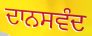
ਦਾਨਸਵੰਦ